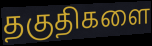
தகுதிகளை